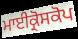
ਮਾਈਕ੍ਰੋਸਕੋਪ